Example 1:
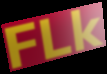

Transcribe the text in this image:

FLk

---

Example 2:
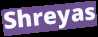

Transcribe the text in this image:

Shreyas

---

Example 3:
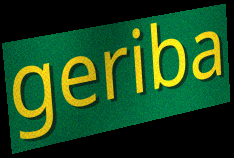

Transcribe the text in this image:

geriba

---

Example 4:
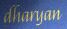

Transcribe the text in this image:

dharyan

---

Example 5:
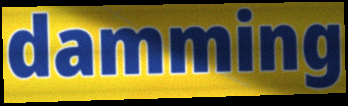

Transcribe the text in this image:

damming